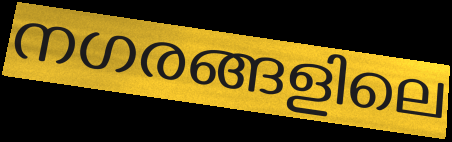
നഗരങ്ങളിലെ